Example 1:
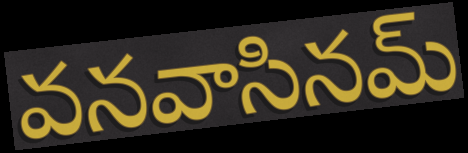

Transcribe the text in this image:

వనవాసినమ్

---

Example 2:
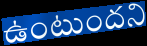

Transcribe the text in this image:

ఉంటుందని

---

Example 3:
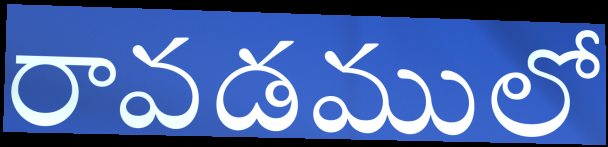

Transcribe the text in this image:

రావడములో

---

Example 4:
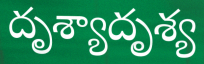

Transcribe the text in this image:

దృశ్యాదృశ్య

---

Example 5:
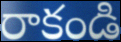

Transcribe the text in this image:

రాకండి